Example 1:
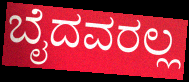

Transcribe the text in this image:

ಬೈದವರಲ್ಲ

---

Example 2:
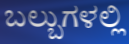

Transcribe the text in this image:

ಬಲ್ಬುಗಳಲ್ಲಿ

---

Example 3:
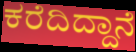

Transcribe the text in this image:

ಕರೆದಿದ್ದಾನೆ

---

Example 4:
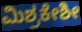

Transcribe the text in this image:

ಮಿಶ್ರಕೇಶೀ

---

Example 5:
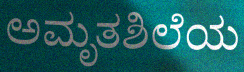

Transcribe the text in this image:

ಅಮೃತಶಿಲೆಯ